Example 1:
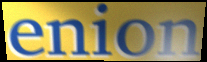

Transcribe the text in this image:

enion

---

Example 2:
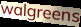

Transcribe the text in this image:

walgreens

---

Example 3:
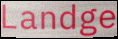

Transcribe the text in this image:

Landge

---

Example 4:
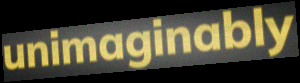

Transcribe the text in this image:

unimaginably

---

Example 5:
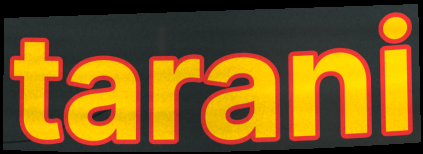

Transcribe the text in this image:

tarani